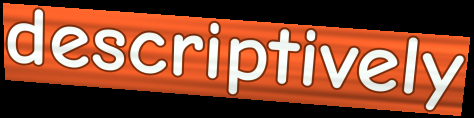
descriptively